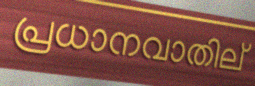
പ്രധാനവാതില്